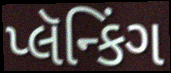
પ્લૅન્કિંગ